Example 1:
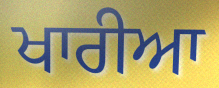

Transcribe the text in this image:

ਖਾਰੀਆ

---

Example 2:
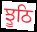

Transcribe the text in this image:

ਝੂਠਿ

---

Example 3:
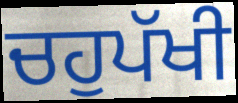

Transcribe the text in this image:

ਚਹੁਪੱਖੀ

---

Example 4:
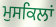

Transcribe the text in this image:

ਮੁਸਕਿਲਾਂ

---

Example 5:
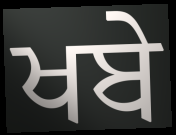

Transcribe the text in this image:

ਖਬੇ